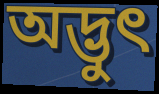
অদ্ভুৎ